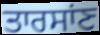
ਤਾਰਸਾਂਣ